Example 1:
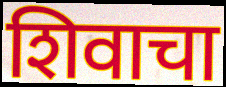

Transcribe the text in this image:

शिवाचा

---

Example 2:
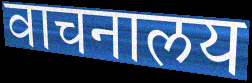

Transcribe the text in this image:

वाचनालय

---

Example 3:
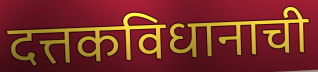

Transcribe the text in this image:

दत्तकविधानाची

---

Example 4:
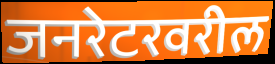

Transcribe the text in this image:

जनरेटरवरील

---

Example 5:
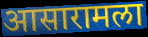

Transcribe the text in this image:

आसारामला